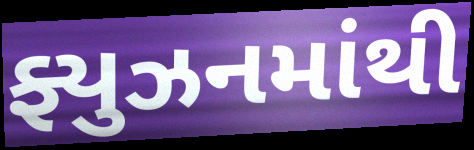
ફ્યુઝનમાંથી